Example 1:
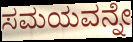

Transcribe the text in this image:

ಸಮಯವನ್ನೇ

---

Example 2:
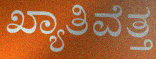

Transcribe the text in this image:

ಖ್ಯಾತಿವೆತ್ತ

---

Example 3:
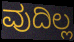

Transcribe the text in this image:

ವುದಿಲ್ಲ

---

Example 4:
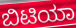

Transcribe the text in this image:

ಬಿಟಿಯಾ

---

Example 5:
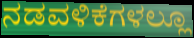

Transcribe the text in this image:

ನಡವಳಿಕೆಗಳಲ್ಲೂ